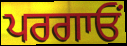
ਪਰਗਾਓਂ